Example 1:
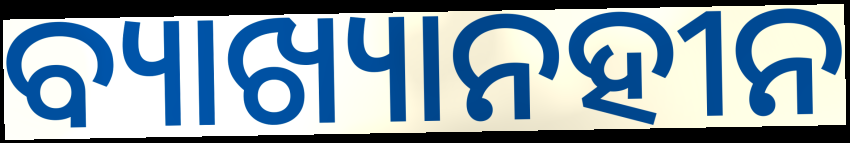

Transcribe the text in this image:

ବ୍ୟାଖ୍ୟାନହୀନ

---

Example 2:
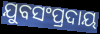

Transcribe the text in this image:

ଯୁବସଂପ୍ରଦାୟ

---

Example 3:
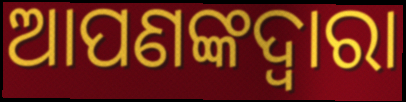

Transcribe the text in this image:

ଆପଣଙ୍କଦ୍ଵାରା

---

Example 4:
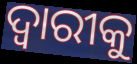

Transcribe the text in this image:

ଦ୍ଵାରୀକୁ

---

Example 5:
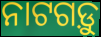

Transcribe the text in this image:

ନାଟଗଡ଼ୁ